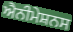
ਐਨੀਮੇਸ਼ਨਸ